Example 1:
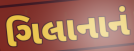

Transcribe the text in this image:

ગિલાનાનં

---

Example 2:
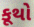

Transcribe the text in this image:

કૂથો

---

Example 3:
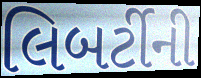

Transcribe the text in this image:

લિબર્ટીની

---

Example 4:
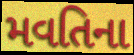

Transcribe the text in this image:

મવતિના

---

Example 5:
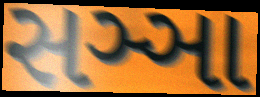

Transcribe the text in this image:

સઞ્ઞા